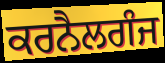
ਕਰਨੈਲਗੰਜ